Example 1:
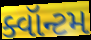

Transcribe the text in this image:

ક્વૉન્ટમ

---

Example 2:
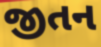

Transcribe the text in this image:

જીતન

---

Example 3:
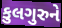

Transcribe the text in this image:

કુલગુરુને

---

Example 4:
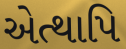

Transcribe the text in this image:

એત્થાપિ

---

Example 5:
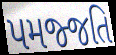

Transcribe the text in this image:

પમજ્જતિ